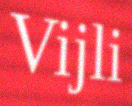
Vijli